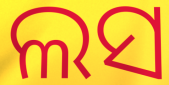
ଲସ